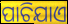
ପାଚିଯାଏ